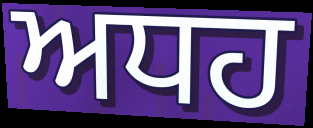
ਅਧਹ